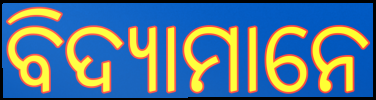
ବିଦ୍ୟାମାନେ